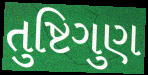
તુષ્ટિગુણ